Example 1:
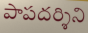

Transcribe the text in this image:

పాపదర్శిని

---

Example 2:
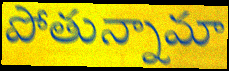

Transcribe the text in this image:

పోతున్నామా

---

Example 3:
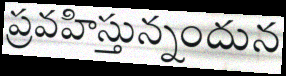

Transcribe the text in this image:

ప్రవహిస్తున్నందున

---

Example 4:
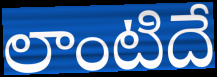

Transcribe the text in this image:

లాంటిదే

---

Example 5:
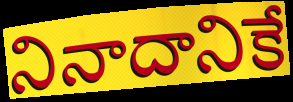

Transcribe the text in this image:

నినాదానికే